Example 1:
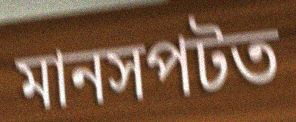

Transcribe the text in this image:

মানসপটত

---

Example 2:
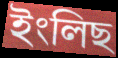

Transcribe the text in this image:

ইংলিছ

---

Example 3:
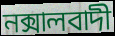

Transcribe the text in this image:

নক্সালবাদী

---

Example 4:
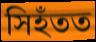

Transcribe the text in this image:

সিহঁতত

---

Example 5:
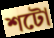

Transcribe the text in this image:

শটো